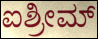
ಐಶ್ರೀಮ್